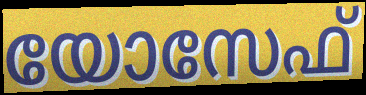
യോസേഫ്